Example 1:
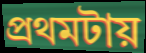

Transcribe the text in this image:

প্রথমটায়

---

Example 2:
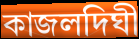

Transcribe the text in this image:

কাজলদিঘী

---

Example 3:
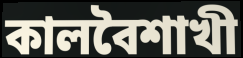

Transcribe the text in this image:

কালবৈশাখী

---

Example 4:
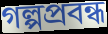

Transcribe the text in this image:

গল্পপ্রবন্ধ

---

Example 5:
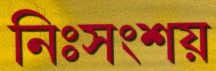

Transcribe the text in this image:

নিঃসংশয়